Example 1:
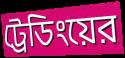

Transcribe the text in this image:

ট্রেডিংয়ের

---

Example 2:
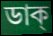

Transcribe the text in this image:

ডাক্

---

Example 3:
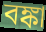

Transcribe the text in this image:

বঙ্কা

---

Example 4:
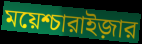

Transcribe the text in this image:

ময়েশ্চারাইজ়ার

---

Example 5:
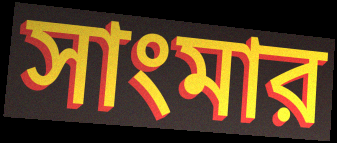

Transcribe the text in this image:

সাংমার